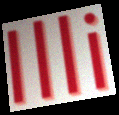
Illi